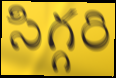
సిగ్గరి